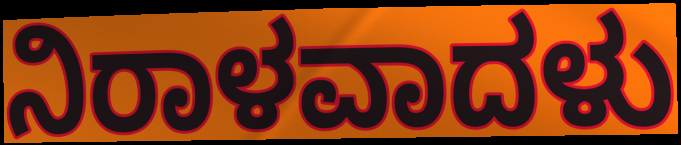
ನಿರಾಳವಾದಳು